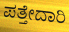
ಪತ್ತೇದಾರಿ